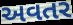
અવતર